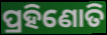
ପ୍ରହିଣୋତି